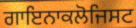
ਗਾਇਨਾਕਲੋਜਿਸਟ